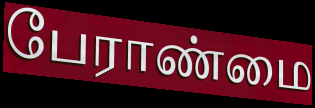
பேராண்மை